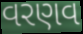
વરણવ